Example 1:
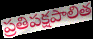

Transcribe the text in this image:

ప్రతిపక్షపాలిత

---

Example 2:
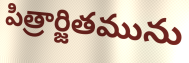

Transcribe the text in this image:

పిత్రార్జితమును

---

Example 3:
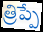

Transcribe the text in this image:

త్రిప్పే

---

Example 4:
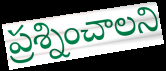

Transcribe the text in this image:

ప్రశ్నించాలని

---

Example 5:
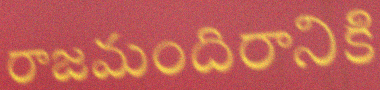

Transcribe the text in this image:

రాజమందిరానికి